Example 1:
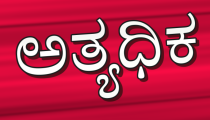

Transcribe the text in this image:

ಅತ್ಯಧಿಕ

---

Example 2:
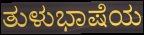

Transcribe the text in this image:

ತುಳುಭಾಷೆಯ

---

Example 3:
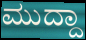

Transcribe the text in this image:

ಮುದ್ದಾ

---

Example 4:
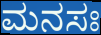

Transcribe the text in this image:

ಮನಸಃ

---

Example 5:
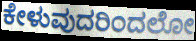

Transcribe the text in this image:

ಕೇಳುವುದರಿಂದಲೋ